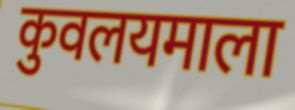
कुवलयमाला